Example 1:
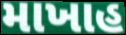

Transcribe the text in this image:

માખાહ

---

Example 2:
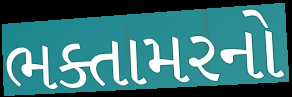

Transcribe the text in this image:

ભક્તામરનો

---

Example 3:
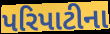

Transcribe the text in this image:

પરિપાટીના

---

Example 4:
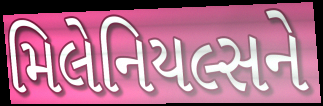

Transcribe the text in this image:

મિલેનિયલ્સને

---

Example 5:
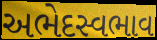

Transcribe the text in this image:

અભેદસ્વભાવ